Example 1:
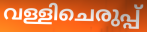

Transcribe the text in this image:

വള്ളിചെരുപ്പ്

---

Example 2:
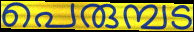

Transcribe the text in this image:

പെരുമ്പട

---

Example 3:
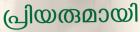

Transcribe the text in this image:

പ്രിയരുമായി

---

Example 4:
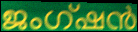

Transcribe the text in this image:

ജംഗ്ഷൻ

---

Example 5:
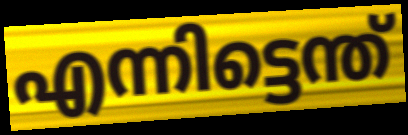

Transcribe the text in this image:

എന്നിട്ടെന്ത്